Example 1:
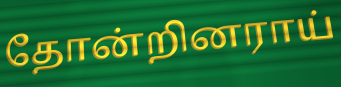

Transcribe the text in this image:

தோன்றினராய்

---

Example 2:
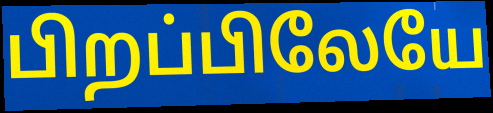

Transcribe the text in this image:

பிறப்பிலேயே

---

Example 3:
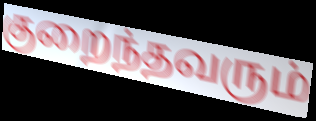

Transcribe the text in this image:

குறைந்தவரும்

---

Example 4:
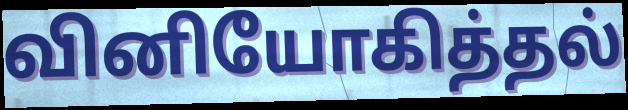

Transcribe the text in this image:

வினியோகித்தல்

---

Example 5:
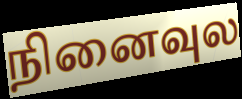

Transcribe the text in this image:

நினைவுல